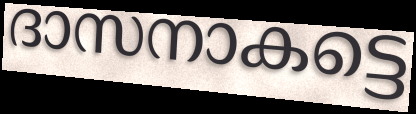
ദാസനാകട്ടെ